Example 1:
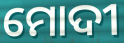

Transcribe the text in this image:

ମୋଦୀ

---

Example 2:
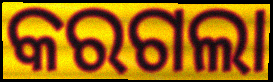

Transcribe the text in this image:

କରଗଲା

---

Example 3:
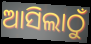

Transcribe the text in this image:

ଆସିଲାଠୁଁ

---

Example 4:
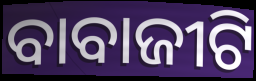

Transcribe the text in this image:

ବାବାଜୀଟି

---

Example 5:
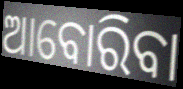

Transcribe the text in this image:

ଆବୋରିବା